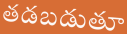
తడబడుతూ